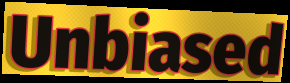
Unbiased